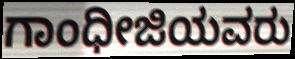
ಗಾಂಧೀಜಿಯವರು